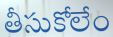
తీసుకోలేం